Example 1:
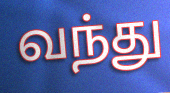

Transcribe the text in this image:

வந்து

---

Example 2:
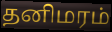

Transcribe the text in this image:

தனிமரம்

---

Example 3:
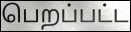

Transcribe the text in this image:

பெறப்பட்ட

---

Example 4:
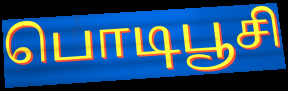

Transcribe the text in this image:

பொடிபூசி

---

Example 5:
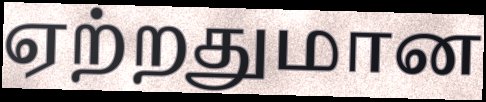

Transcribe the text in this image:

ஏற்றதுமான